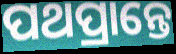
ପଥପ୍ରାନ୍ତେ